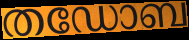
തഡോബ